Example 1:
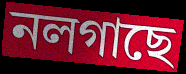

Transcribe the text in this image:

নলগাছে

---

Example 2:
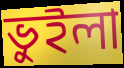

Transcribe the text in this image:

ভুইলা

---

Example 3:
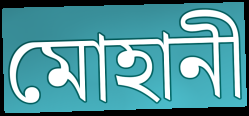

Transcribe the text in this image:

মোহানী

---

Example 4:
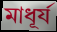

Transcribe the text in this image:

মাধূর্য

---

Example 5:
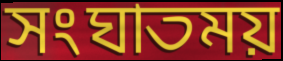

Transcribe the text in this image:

সংঘাতময়